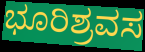
ಭೂರಿಶ್ರವಸ